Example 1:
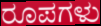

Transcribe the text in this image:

ರೂಪಗಳು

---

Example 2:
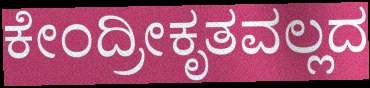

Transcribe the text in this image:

ಕೇಂದ್ರೀಕೃತವಲ್ಲದ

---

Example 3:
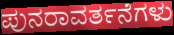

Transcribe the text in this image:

ಪುನರಾವರ್ತನೆಗಳು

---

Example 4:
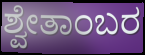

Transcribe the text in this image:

ಶ್ವೇತಾಂಬರ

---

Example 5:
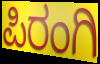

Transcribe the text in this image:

ಪಿರಂಗಿ